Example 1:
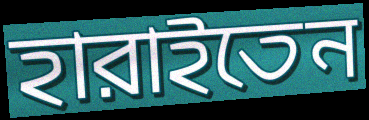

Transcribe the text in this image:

হারাইতেন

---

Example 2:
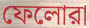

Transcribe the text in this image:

ফেলোরা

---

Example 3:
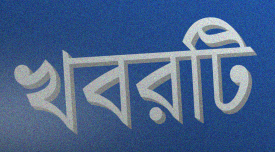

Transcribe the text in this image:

খবরটি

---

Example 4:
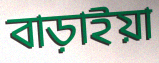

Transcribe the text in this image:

বাড়াইয়া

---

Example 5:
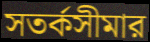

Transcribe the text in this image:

সতর্কসীমার